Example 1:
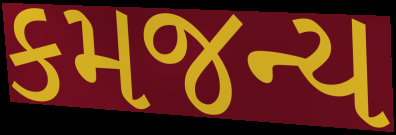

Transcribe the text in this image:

કમજન્ય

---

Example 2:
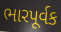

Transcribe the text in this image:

ભારપૂર્વક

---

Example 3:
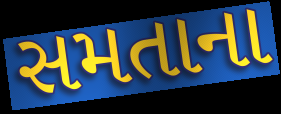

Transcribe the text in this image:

સમતાના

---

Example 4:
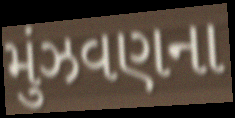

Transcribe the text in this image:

મુંઝવણના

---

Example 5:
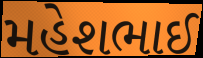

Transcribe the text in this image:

મહેશભાઈ